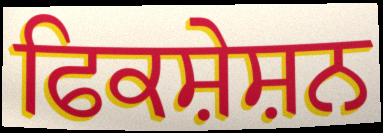
ਫਿਕਸ਼ੇਸ਼ਨ